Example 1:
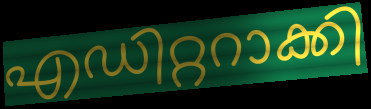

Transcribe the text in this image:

എഡിറ്ററാക്കി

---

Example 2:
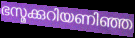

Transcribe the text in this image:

ഭസ്മക്കുറിയണിഞ്ഞ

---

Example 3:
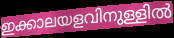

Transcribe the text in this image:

ഇക്കാലയളവിനുള്ളിൽ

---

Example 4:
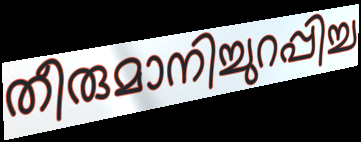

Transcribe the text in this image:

തീരുമാനിച്ചുറപ്പിച്ച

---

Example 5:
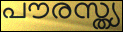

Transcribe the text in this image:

പൗരസ്ത്യ